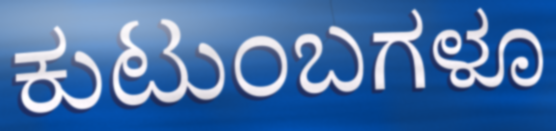
ಕುಟುಂಬಗಳೂ